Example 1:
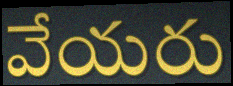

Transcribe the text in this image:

వేయరు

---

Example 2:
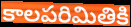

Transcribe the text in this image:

కాలపరిమితికి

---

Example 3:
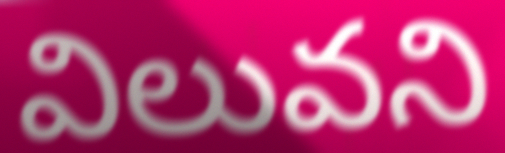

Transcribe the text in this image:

విలువని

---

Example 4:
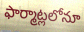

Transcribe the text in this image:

ఫార్మాట్లలోనూ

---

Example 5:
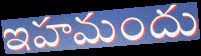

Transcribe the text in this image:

ఇహమందు